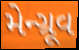
મેન્ગ્રૂવ